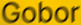
Gobor